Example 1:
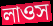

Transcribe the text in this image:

লাওস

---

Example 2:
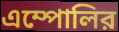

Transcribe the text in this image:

এম্পোলির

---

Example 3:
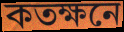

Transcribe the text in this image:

কতক্ষনে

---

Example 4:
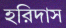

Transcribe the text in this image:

হরিদাস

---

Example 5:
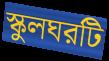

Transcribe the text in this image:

স্কুলঘরটি